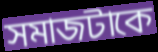
সমাজটাকে